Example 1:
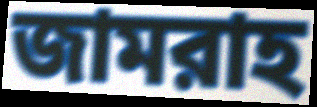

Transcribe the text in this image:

জামরাহ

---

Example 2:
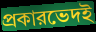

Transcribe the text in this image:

প্রকারভেদই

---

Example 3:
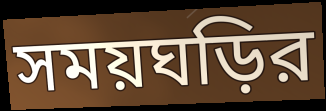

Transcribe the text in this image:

সময়ঘড়ির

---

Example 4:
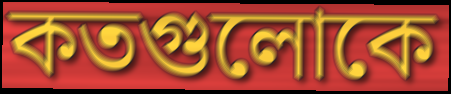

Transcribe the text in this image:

কতগুলোকে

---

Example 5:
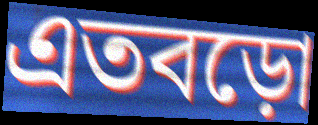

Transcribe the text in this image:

এতবড়ো